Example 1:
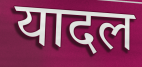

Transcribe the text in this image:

यादल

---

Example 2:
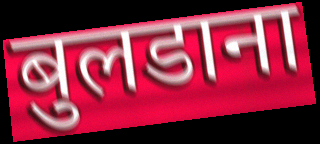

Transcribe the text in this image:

बुलडाना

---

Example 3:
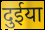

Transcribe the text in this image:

दुईया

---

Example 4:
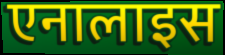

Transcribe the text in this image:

एनालाइस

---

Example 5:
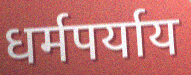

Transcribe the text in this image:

धर्मपर्याय